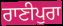
ਰਾਣੀਪੁਰਾ